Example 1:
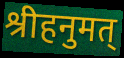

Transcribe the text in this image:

श्रीहनुमत्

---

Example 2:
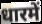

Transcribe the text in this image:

धारमें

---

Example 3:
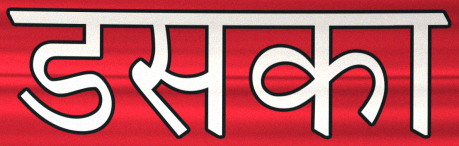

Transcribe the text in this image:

डसका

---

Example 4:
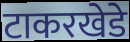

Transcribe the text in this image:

टाकरखेडे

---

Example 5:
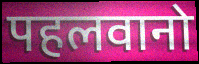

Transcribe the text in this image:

पहलवानो